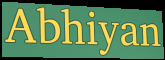
Abhiyan